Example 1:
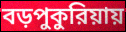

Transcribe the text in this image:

বড়পুকুরিয়ায়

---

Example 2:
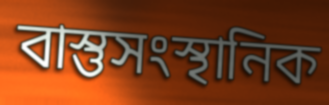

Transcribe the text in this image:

বাস্তুসংস্থানিক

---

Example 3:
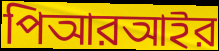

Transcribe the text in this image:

পিআরআইর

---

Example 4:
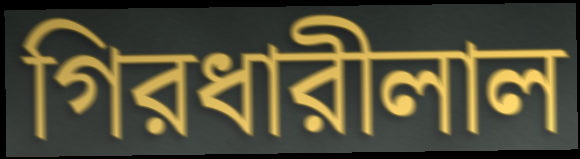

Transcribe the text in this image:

গিরধারীলাল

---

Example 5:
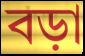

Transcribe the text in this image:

বড়া